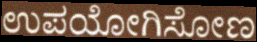
ಉಪಯೋಗಿಸೋಣ